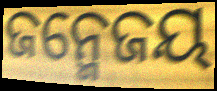
ଜନ୍ମେଜୟ